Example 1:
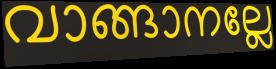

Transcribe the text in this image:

വാങ്ങാനല്ലേ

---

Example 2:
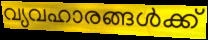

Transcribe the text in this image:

വ്യവഹാരങ്ങൾക്ക്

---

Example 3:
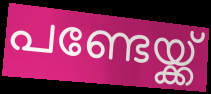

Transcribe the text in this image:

പണ്ടേയ്ക്ക്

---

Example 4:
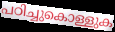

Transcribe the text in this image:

പഠിച്ചുകൊള്ളുക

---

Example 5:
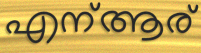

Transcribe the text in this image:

എന്ആര്